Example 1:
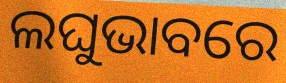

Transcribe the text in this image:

ଲଘୁଭାବରେ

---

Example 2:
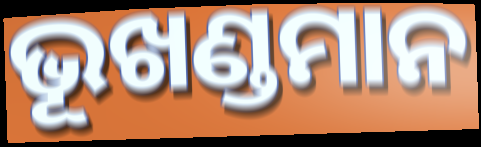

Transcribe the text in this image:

ଭୂଖଣ୍ଡମାନ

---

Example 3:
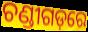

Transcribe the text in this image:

ଚଣ୍ଡୀଗଡ଼ରେ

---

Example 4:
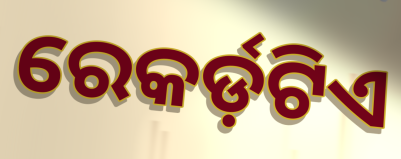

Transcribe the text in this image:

ରେକର୍ଡ଼ଟିଏ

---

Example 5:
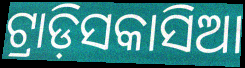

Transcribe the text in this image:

ଟ୍ରାଡ଼ିସକାସିଆ